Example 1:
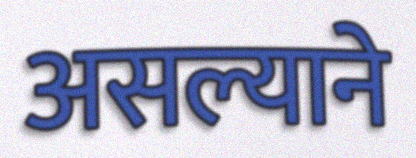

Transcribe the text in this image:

असल्‍याने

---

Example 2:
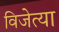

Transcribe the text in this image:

विजेत्या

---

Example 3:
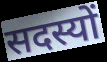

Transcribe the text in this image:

सदस्यों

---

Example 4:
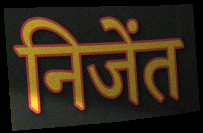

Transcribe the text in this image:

निजेंत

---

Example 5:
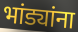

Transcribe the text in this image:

भांड्यांना